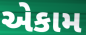
એકામ